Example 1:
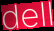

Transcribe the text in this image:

dell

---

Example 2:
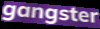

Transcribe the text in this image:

gangster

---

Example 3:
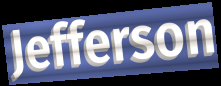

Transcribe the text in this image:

Jefferson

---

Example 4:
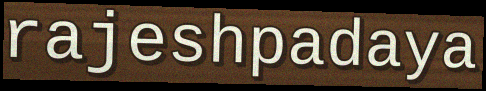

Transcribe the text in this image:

rajeshpadaya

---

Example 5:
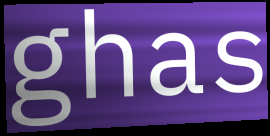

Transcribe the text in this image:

ghas